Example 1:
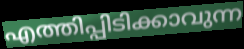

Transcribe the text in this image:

എത്തിപ്പിടിക്കാവുന്ന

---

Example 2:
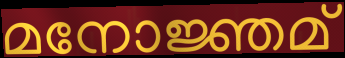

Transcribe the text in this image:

മനോജ്ഞമ്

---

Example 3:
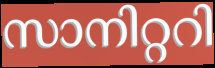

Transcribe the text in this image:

സാനിറ്ററി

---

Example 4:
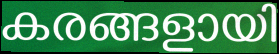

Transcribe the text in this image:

കരങ്ങളായി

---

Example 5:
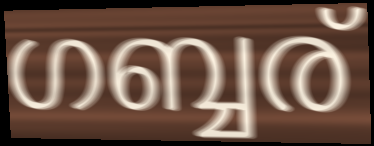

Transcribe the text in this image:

ഗബ്ബര്